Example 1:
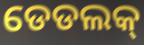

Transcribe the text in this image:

ଡେଡଲକ୍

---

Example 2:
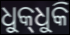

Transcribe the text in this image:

ଧୁକ୍‌ଧୁକି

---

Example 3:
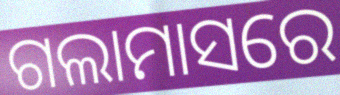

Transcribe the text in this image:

ଗଲାମାସରେ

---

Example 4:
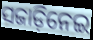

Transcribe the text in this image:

ସଜାଡ଼ିନେଇ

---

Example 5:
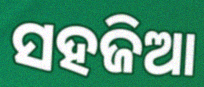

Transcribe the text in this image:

ସହଜିଆ